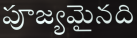
పూజ్యమైనది